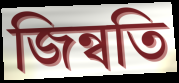
জিন্বতি